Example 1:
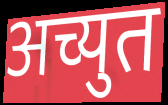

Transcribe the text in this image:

अच्‍युत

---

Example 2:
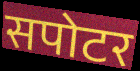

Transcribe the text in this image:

सपोटर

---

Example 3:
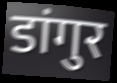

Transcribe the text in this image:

डांगुर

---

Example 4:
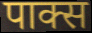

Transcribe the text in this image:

पाक्स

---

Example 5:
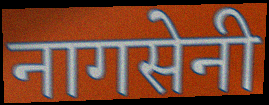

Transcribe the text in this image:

नागसेनी